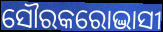
ସୌରକରୋଦ୍ଭାସୀ